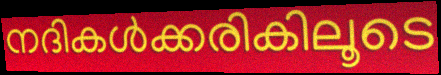
നദികൾക്കരികിലൂടെ